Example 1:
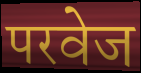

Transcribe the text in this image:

परवेज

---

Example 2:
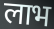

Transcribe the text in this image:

लाभ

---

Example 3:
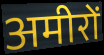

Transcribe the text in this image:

अमीरों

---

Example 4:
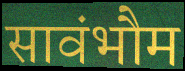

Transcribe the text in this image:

सावंभौम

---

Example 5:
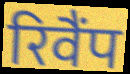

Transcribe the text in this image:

रिवैंप